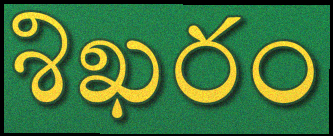
శిఖరం